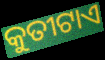
କୁତୀଟାଏ